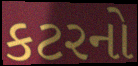
કટરનો